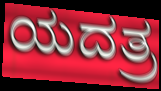
ಯದತ್ರ